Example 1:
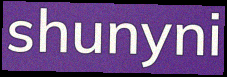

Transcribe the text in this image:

shunyni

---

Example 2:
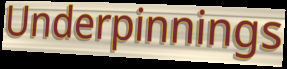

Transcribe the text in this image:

Underpinnings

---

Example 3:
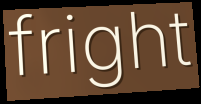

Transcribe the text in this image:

fright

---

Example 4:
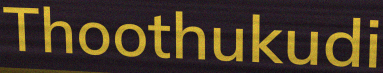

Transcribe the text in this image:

Thoothukudi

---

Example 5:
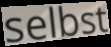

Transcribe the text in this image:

selbst